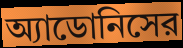
অ্যাডোনিসের